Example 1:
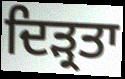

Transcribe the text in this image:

ਦਿੜ੍ਰਤਾ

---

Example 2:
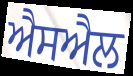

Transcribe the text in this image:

ਐਸਐਲ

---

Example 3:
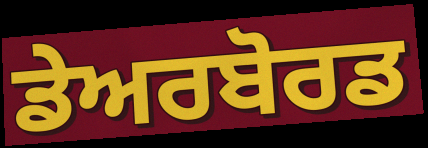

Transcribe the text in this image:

ਡੇਅਰਬੋਰਡ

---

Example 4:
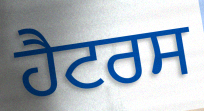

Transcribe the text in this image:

ਹੈਟਰਸ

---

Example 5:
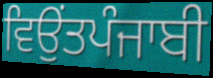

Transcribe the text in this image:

ਵਿਉਂਤਪੰਜਾਬੀ